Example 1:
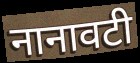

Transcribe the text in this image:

नानावटी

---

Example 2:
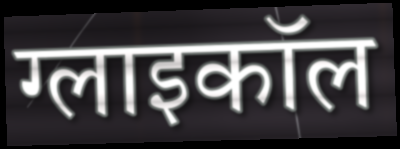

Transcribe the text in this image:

ग्लाइकॉल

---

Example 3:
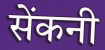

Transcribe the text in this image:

सेंकनी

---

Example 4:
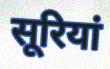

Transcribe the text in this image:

सूरियां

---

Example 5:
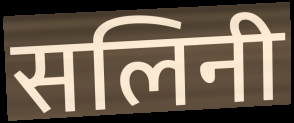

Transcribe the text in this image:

सलिनी